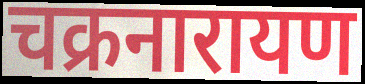
चक्रनारायण